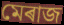
মেৰাজ